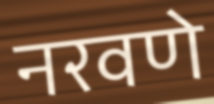
नरवणे